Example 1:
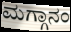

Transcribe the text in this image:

ಮಗ್ಗಾನಂ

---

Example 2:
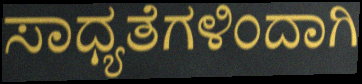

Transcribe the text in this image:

ಸಾಧ್ಯತೆಗಳಿಂದಾಗಿ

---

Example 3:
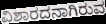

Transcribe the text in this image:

ವಿಶಾರದನಾಗಿರುವ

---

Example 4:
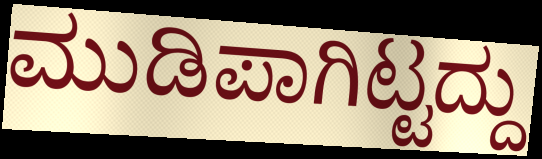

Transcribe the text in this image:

ಮುಡಿಪಾಗಿಟ್ಟದ್ದು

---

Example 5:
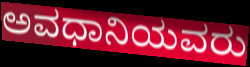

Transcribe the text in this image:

ಅವಧಾನಿಯವರು